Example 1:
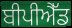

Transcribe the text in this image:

ਬੀਪੀਐੱਡ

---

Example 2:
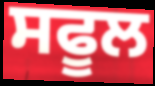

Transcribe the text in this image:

ਸਫੂਲ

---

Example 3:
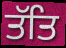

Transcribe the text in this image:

ਤੱਤਿ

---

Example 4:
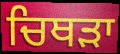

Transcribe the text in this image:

ਚਿਥੜਾ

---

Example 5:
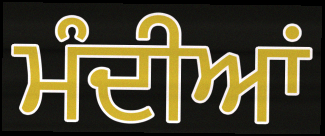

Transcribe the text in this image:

ਮੰਦੀਆਂ